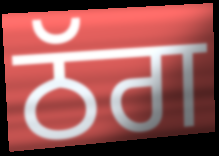
ਠੱਗ